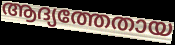
ആദ്യത്തേതായ